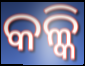
କଳ୍କି